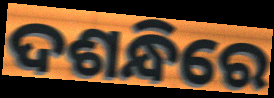
ଦଶନ୍ଧିରେ